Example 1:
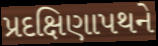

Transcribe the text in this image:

પ્રદક્ષિણાપથને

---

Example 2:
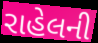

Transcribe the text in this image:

રાહેલની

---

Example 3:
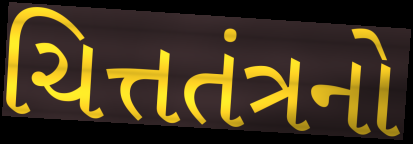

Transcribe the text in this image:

ચિત્તતંત્રનો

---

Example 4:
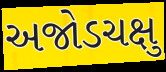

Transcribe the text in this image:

અજોડચક્ષુ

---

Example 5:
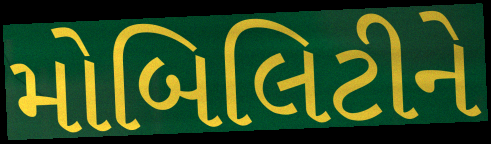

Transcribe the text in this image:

મોબિલિટીને